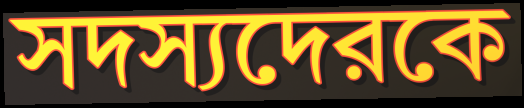
সদস্যদেরকে